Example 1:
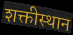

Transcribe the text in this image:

शक्तीस्थान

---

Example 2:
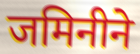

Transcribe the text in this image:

जमिनीने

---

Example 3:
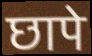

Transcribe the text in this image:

छापे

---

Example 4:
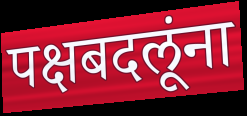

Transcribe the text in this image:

पक्षबदलूंना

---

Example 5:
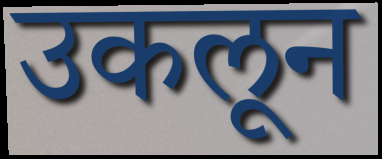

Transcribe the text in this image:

उकलून